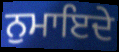
ਨੁਮਾਇਦੇ